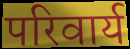
परिवार्य